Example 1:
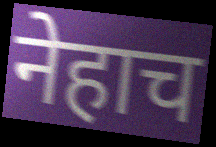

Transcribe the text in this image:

नेहाच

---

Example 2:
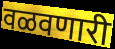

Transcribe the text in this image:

वळवणारी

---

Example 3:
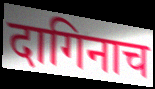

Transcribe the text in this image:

दागिनाच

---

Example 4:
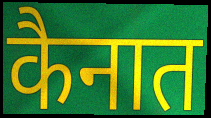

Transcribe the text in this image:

कैनात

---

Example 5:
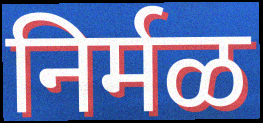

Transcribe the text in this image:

निर्मळ